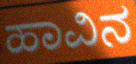
ಹಾವಿನ